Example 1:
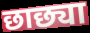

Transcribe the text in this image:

छाछ्या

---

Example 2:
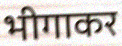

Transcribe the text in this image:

भीगाकर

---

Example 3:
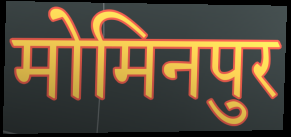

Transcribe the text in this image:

मोमिनपुर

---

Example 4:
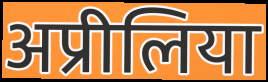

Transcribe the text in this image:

अप्रीलिया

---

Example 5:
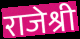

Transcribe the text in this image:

राजेश्री